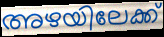
അഴയിലേക്ക്